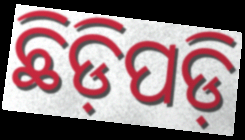
ଛିଡ଼ିପଡ଼ି